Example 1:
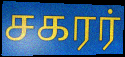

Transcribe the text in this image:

சகரர்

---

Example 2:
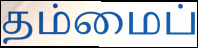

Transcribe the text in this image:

தம்மைப்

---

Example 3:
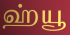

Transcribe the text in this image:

ஹ்யூ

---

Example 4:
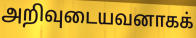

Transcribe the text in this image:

அறிவுடையவனாகக்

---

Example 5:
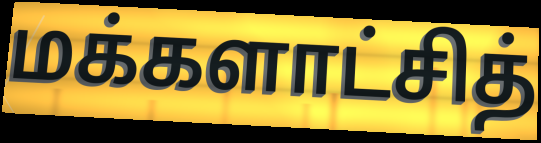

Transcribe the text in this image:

மக்களாட்சித்